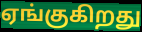
ஏங்குகிறது